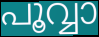
പൂവ്വാ